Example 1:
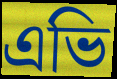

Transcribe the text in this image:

এভি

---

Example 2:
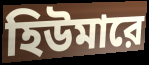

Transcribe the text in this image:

হিউমারে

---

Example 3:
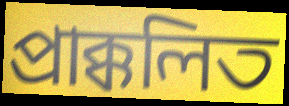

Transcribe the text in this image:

প্রাক্কলিত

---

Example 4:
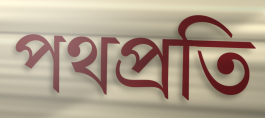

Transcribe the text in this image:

পথপ্রতি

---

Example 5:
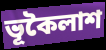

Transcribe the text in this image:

ভূকৈলাশ